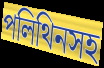
পলিথিনসহ